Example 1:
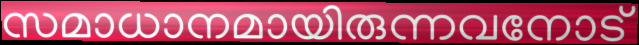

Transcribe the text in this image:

സമാധാനമായിരുന്നവനോട്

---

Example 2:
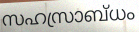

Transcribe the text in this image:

സഹസ്രാബ്ധം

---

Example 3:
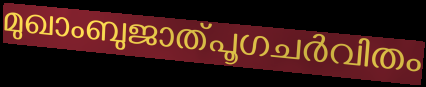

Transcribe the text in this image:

മുഖാംബുജാത്പൂഗചർവിതം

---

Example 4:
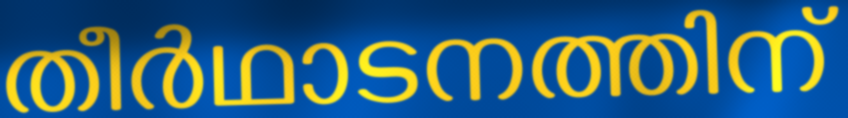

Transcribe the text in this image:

തീർഥാടനത്തിന്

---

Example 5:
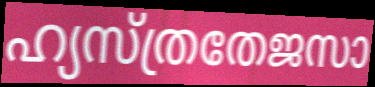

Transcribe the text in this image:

ഹ്യസ്ത്രതേജസാ